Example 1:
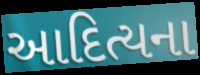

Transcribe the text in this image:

આદિત્યના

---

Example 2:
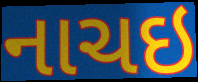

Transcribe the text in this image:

નાચઇ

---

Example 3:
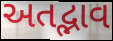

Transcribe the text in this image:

અતદ્ભાવ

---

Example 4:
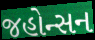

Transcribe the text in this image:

જહોન્સન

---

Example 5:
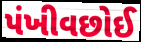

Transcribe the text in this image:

પંખીવછોઈ